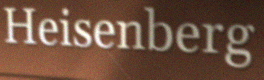
Heisenberg